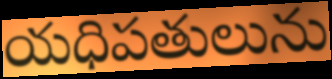
యధిపతులును